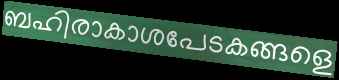
ബഹിരാകാശപേടകങ്ങളെ